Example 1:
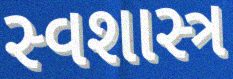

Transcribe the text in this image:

સ્વશાસ્ત્ર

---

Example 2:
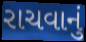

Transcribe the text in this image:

રાચવાનું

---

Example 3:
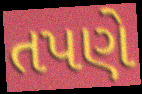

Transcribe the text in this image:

તપણે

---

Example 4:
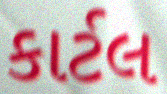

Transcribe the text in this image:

કાર્ટલ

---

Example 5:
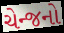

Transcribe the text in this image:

ચેન્જનો